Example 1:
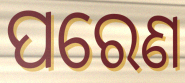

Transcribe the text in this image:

ପରେଣ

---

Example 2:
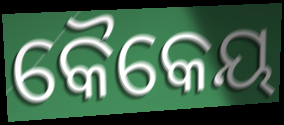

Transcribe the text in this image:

କୈକେୟ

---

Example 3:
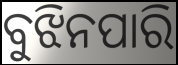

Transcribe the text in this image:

ବୁଝିନପାରି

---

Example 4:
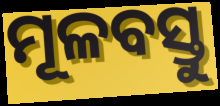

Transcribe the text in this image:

ମୂଳବସ୍ତୁ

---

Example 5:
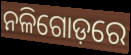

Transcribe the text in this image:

ନଳିଗୋଡ଼ରେ